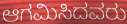
ಆಗಮಿಸಿದವರು